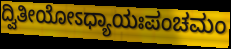
ದ್ವಿತೀಯೋಽಧ್ಯಾಯಃಪಂಚಮಂ